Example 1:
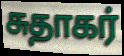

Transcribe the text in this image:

சுதாகர்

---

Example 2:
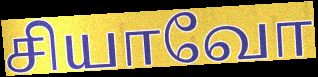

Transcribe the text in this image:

சியாவோ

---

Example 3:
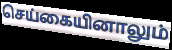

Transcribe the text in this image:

செய்கையினாலும்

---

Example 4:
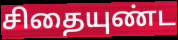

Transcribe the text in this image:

சிதையுண்ட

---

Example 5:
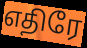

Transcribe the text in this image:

எதிரே